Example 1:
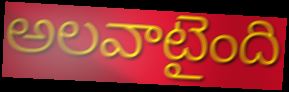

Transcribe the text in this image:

అలవాటైంది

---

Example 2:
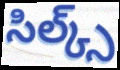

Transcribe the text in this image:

సిల్క్స్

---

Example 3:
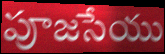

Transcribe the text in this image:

పూజసేయు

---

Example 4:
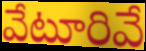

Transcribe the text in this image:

వేటూరివే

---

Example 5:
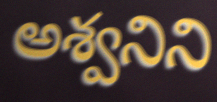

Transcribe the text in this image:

అశ్వనిని